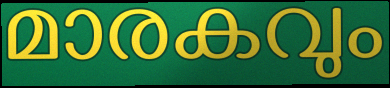
മാരകവും